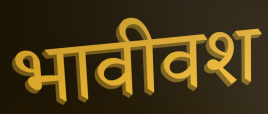
भावीवश